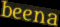
beena